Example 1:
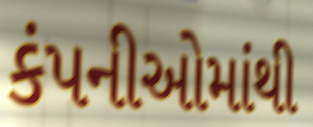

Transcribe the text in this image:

કંપનીઓમાંથી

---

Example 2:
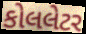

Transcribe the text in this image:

કોલલેટર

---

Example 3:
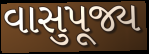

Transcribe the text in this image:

વાસુપૂજ્ય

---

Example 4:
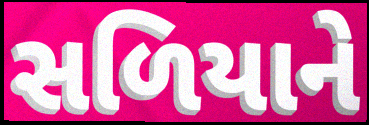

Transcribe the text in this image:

સળિયાને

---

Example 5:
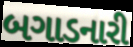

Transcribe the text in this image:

બગાડનારી